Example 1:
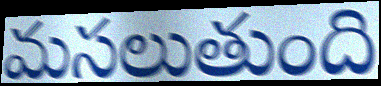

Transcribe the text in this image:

మసలుతుంది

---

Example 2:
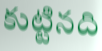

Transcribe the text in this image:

కుట్టినది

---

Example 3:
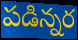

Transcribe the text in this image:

పడిన్నర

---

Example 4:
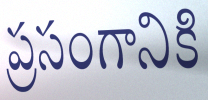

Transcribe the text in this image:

ప్రసంగానికి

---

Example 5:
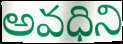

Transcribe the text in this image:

అవధిని